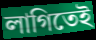
লাগিতেই